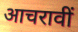
आचरावीं